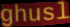
ghusl